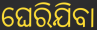
ଘେରିଯିବା